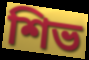
শিভ